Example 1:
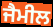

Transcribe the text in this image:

ਜੈਮੀਲ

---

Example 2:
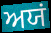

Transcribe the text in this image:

ਅਯਂ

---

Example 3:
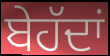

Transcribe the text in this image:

ਬੇਹੱਦਾਂ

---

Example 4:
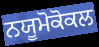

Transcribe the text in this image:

ਨਯੂਮੋਕੋਕਲ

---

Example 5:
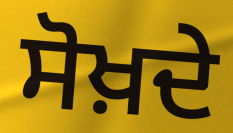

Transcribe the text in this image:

ਸੋਖ਼ਦੇ